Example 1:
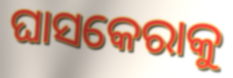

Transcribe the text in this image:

ଘାସକେରାକୁ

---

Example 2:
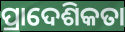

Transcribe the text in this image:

ପ୍ରାଦେଶିକତା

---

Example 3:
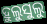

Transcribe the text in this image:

ହୁଲୁସୁଲୁ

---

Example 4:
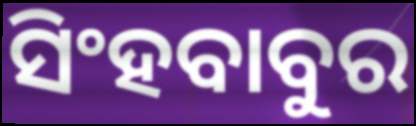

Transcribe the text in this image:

ସିଂହବାବୁର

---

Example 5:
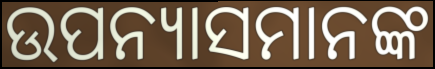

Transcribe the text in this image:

ଉପନ୍ୟାସମାନଙ୍କ